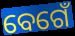
ବେଗେଁ